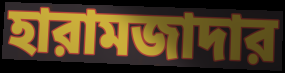
হারামজাদার